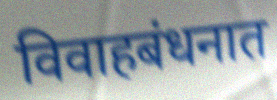
विवाहबंधनात